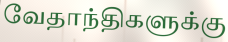
வேதாந்திகளுக்கு